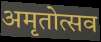
अमृतोत्सव